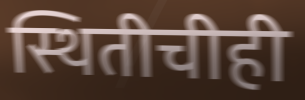
स्थितीचीही